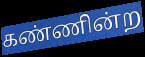
கண்ணின்ற